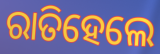
ରାତିହେଲେ